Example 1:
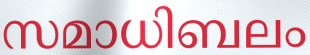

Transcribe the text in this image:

സമാധിബലം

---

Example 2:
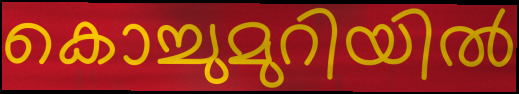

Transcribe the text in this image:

കൊച്ചുമുറിയിൽ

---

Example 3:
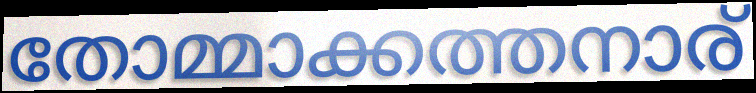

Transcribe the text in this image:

തോമ്മാക്കത്തനാര്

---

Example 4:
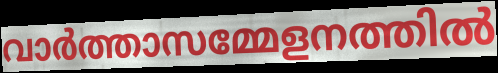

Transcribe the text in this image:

വാർത്താസമ്മേളനത്തിൽ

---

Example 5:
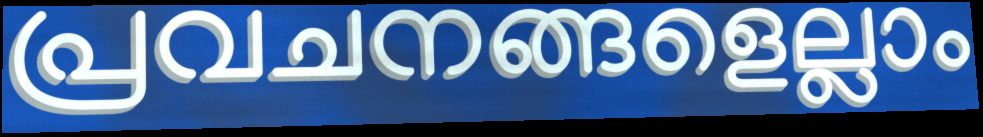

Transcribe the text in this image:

പ്രവചനങ്ങളെല്ലാം